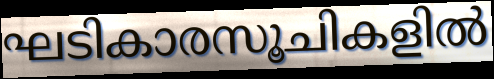
ഘടികാരസൂചികളിൽ